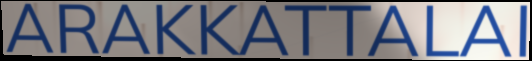
ARAKKATTALAI